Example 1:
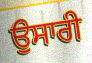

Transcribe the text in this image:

ਉਸਾਰੀ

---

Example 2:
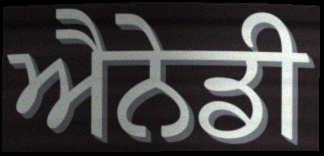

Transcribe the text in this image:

ਐਨੇਡੀ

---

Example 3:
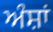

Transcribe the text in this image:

ਅੰਸ਼ਾਂ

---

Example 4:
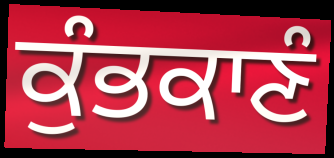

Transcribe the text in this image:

ਕੁੰਭਕਾਣੰ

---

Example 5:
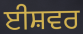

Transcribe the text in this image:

ਈਸ਼ਵਰ